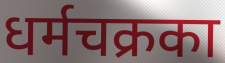
धर्मचक्रका